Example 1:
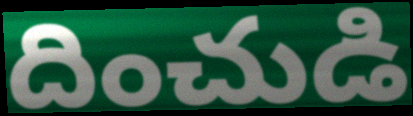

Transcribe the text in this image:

దించుడి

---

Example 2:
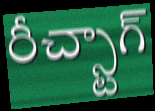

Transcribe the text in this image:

రీచ్స్టాగ్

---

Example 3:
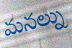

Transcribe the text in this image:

మనల్ను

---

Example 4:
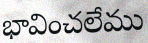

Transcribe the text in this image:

భావించలేము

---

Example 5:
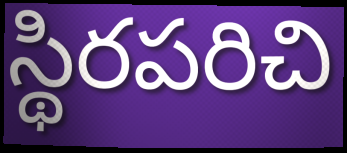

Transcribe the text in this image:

స్థిరపరిచి